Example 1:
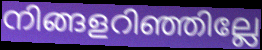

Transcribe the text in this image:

നിങ്ങളറിഞ്ഞില്ലേ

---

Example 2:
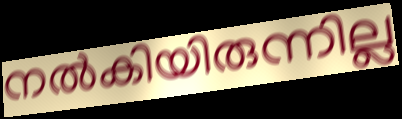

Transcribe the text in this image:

നൽകിയിരുന്നില്ല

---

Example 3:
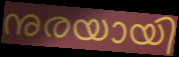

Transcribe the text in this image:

നുരയായി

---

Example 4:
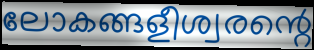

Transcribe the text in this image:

ലോകങ്ങളീശ്വരന്റെ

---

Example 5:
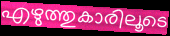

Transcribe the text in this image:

എഴുത്തുകാരിലൂടെ